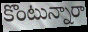
కొంటున్నారా